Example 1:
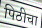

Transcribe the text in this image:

पिठीचा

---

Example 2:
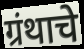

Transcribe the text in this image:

ग्रंथाचे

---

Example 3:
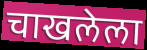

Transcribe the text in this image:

चाखलेला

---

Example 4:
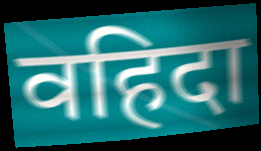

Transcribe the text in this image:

वहिदा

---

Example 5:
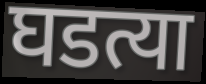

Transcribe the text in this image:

घडत्या